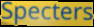
Specters